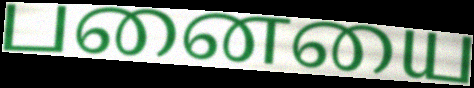
பனையை